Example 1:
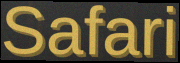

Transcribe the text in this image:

Safari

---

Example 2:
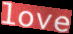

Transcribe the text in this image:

love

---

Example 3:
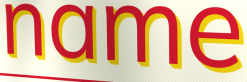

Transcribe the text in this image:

name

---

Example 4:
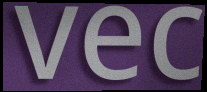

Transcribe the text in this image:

vec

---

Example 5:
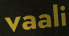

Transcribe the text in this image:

vaali